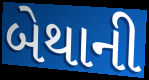
બેથાની